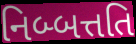
નિબ્બત્તતિ